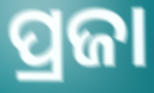
ପ୍ରଜା